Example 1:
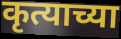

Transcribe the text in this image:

कृत्याच्या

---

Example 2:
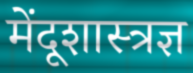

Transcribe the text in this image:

मेंदूशास्त्रज्ञ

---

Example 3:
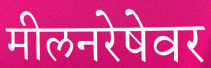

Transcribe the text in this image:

मीलनरेषेवर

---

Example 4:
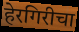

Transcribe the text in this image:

हेरगिरीचा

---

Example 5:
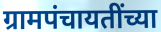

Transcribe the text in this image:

ग्रामपंचायतींच्या